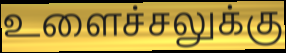
உளைச்சலுக்கு